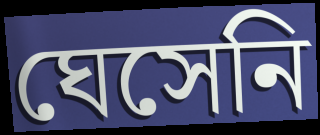
ঘেসেনি